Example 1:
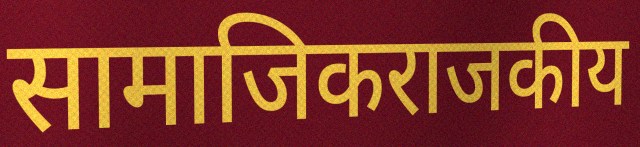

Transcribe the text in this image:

सामाजिकराजकीय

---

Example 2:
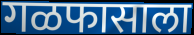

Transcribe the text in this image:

गळफासाला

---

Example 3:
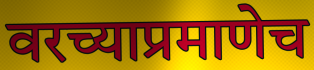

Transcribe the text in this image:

वरच्याप्रमाणेच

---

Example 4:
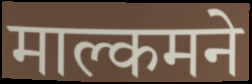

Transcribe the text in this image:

माल्कमने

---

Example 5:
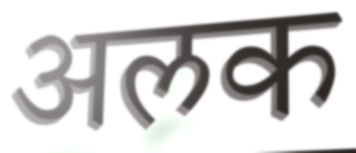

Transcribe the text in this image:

अलक